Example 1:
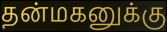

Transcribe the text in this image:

தன்மகனுக்கு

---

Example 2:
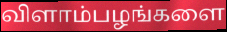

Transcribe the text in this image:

விளாம்பழங்களை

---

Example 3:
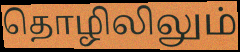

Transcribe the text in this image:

தொழிலிலும்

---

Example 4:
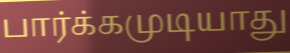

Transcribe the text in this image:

பார்க்கமுடியாது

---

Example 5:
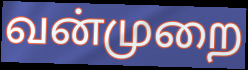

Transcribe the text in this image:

வன்முறை